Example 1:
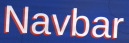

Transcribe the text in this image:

Navbar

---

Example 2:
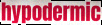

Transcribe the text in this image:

hypodermic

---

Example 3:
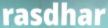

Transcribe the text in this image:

rasdhar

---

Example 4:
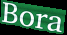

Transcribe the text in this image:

Bora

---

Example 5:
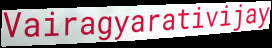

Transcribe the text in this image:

Vairagyarativijay